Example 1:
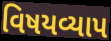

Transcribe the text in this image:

વિષયવ્યાપ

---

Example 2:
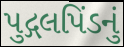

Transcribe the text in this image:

પુદ્ગલપિંડનું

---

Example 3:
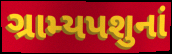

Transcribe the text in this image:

ગ્રામ્યપશુનાં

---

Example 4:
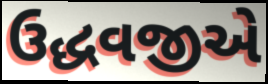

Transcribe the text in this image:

ઉદ્ધવજીએ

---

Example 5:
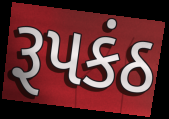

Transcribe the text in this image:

રૂપકંઠ